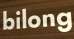
bilong